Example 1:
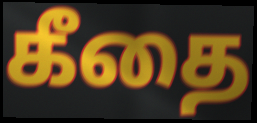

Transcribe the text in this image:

கீதை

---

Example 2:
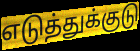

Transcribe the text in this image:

எடுத்துக்குடு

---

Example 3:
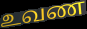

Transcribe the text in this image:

உவண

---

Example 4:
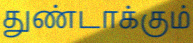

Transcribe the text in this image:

துண்டாக்கும்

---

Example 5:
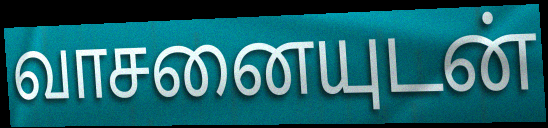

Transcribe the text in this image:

வாசனையுடன்